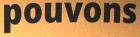
pouvons